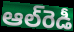
ఆల్‌రెడీ